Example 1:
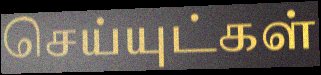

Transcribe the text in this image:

செய்யுட்கள்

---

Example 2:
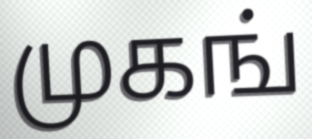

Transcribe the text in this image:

முகங்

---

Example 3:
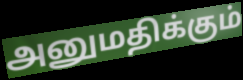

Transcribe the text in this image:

அனுமதிக்கும்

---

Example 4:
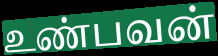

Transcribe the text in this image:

உண்பவன்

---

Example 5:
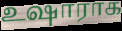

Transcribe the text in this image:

உஷாராக